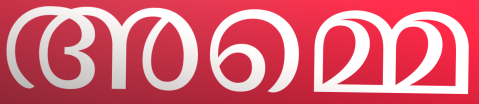
അമ്മെ